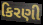
કિરણી